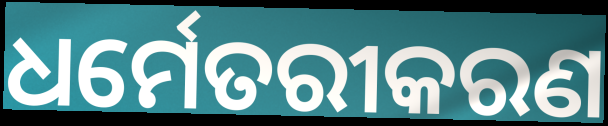
ଧର୍ମେତରୀକରଣ